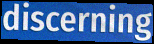
discerning